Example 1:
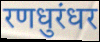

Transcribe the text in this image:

रणधुरंधर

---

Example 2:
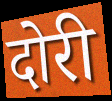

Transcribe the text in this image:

दोरी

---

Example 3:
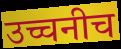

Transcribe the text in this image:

उच्चनीच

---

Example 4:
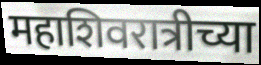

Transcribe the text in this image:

महाशिवरात्रीच्या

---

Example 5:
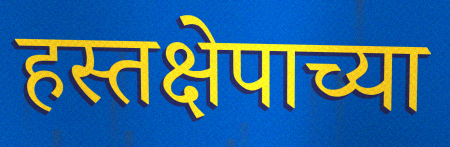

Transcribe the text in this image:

हस्तक्षेपाच्या